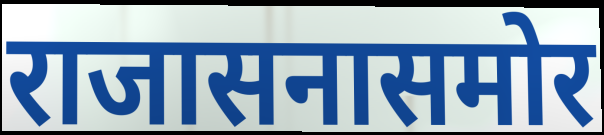
राजासनासमोर